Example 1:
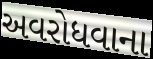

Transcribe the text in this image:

અવરોધવાના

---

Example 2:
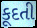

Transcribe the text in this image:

કૂદતી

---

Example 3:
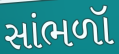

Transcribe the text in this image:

સાંભળૉ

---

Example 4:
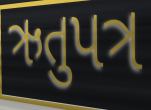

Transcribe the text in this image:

ઋતુપત્ર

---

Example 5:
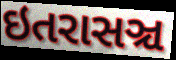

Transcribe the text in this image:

ઇતરાસઞ્ચ